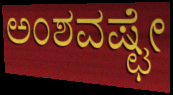
ಅಂಶವಷ್ಟೇ